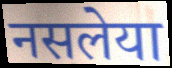
नसलेया